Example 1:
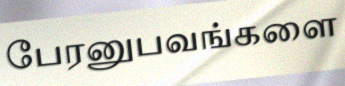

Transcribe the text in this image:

பேரனுபவங்களை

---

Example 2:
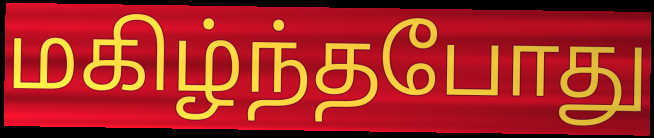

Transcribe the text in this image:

மகிழ்ந்தபோது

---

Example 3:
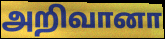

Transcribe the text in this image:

அறிவானா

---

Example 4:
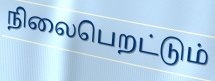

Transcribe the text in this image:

நிலைபெறட்டும்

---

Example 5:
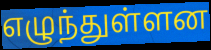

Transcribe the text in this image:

எழுந்துள்ளன